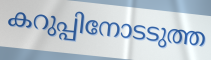
കറുപ്പിനോടടുത്ത